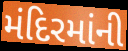
મંદિરમાંની